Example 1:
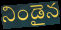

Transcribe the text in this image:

నిండైన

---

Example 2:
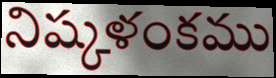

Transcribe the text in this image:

నిష్కళంకము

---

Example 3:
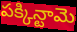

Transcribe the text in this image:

పక్కిన్టామె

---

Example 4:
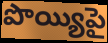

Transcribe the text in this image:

పొయ్యిపై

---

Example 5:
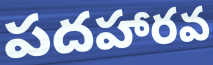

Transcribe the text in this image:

పదహారవ